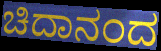
ಚಿದಾನಂದ